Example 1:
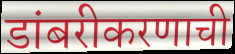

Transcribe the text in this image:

डांबरीकरणाची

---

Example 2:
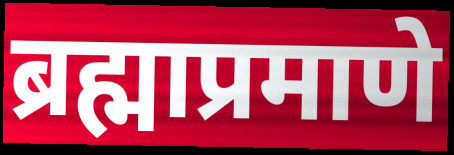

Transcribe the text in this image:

ब्रह्माप्रमाणे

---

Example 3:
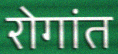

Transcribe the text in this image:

रोगांत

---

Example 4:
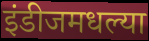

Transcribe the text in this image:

इंडीजमधल्या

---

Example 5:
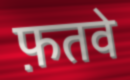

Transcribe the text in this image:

फ़तवे